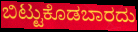
ಬಿಟ್ಟುಕೊಡಬಾರದು